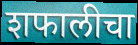
शफालीचा